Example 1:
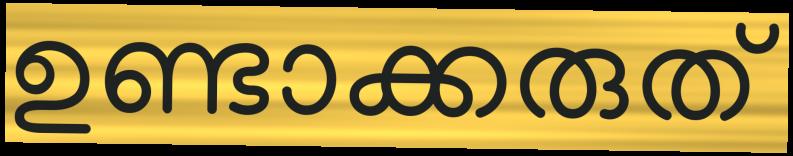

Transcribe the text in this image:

ഉണ്ടാക്കരുത്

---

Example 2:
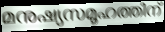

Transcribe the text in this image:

മനുഷ്യസമൂഹത്തിന്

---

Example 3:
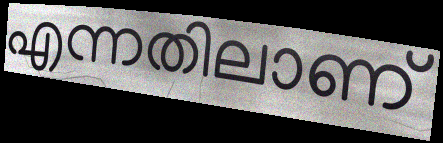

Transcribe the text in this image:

എന്നതിലാണ്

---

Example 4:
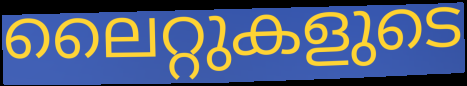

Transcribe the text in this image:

ലൈറ്റുകളുടെ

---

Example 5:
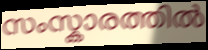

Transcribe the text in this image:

സംസ്കാരത്തിൽ